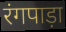
रंगपाड़ा